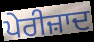
ਪੇਰੀਜ਼ਾਦ